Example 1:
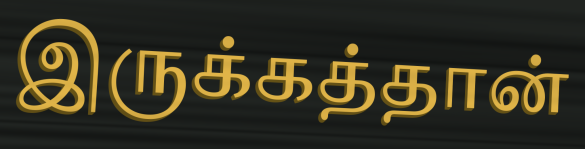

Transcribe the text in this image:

இருக்கத்தான்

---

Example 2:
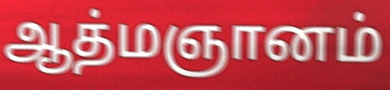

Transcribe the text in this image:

ஆத்மஞானம்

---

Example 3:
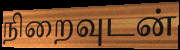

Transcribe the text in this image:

நிறைவுடன்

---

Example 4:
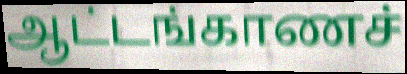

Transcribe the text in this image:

ஆட்டங்காணச்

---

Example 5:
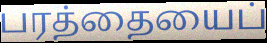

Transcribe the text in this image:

பரத்தையைப்